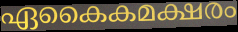
ഏകൈകമക്ഷരം